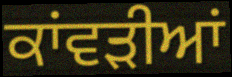
ਕਾਂਵੜੀਆਂ